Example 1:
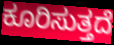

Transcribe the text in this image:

ಕೂರಿಸುತ್ತದೆ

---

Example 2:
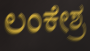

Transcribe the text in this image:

ಲಂಕೇಶ್ರ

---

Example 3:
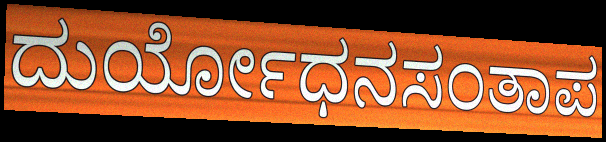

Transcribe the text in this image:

ದುರ್ಯೋಧನಸಂತಾಪ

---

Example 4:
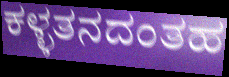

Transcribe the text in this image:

ಕಳ್ಳತನದಂತಹ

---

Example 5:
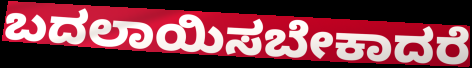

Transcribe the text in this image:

ಬದಲಾಯಿಸಬೇಕಾದರೆ